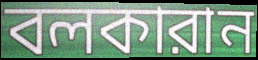
বলকারান